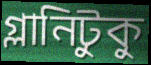
গ্লানিটুকু